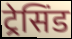
ट्रेसिंड